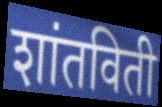
शांतविती